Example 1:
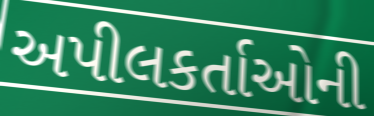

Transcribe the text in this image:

અપીલકર્તાઓની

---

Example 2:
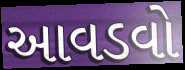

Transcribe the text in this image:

આવડવો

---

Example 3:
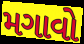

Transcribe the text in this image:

મગાવો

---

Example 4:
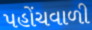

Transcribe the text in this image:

પહોંચવાળી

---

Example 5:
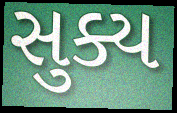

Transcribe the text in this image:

સુક્ય